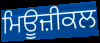
ਮਿਊਜ਼ੀਕਲ